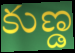
కుణ్డ